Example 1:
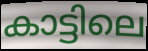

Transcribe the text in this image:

കാട്ടിലെ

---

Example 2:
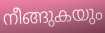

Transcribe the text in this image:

നീങ്ങുകയും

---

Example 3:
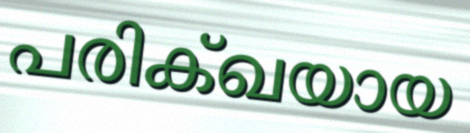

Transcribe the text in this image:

പരിക്ഖയായ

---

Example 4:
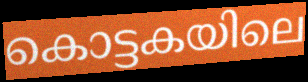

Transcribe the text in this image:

കൊട്ടകയിലെ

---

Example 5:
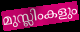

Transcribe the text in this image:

മുസ്ലിംകളും